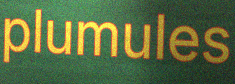
plumules